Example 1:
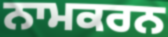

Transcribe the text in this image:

ਨਾਮਕਰਨ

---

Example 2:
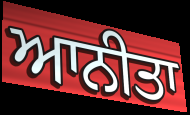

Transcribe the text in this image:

ਆਨੀਤਾ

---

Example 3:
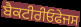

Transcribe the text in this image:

ਬੈਕਟੀਰੀਓਫੇਜਸ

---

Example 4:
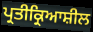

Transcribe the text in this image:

ਪ੍ਰਤੀਕ੍ਰਿਆਸ਼ੀਲ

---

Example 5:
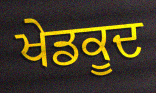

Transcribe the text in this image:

ਖੇਡਕੂਦ